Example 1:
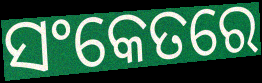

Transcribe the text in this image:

ସଂକେତରେ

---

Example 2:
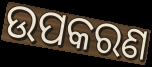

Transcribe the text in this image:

ଉପକରଣ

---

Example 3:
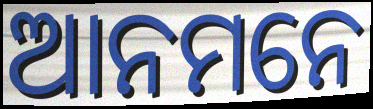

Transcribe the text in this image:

ଆନମନେ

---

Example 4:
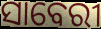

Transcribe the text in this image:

ସାବେରୀ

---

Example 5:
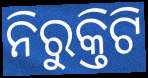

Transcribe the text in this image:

ନିରୁକ୍ତିଟି